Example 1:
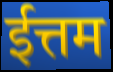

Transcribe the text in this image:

ईत्तम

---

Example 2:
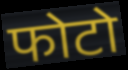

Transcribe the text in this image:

फोटो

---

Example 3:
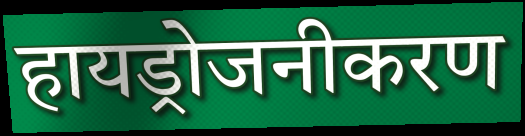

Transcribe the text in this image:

हायड्रोजनीकरण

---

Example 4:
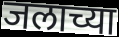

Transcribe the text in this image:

जलाच्या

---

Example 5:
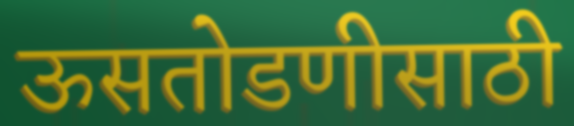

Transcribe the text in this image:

ऊसतोडणीसाठी